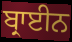
ਬ੍ਰਾਈਨ